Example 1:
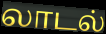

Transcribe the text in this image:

லாடல்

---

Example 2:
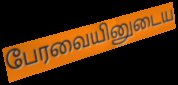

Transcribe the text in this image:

பேரவையினுடைய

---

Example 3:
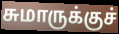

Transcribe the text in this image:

சுமாருக்குச்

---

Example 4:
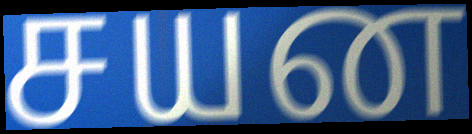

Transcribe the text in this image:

சயன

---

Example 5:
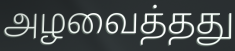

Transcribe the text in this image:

அழவைத்தது